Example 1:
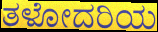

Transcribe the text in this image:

ತಳೋದರಿಯ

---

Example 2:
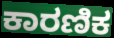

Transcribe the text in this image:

ಕಾರಣಿಕ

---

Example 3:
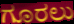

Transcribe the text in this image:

ಗೂರಲು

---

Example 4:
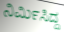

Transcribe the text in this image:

ನಿರ್ಮಿಸಿದ್ದ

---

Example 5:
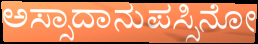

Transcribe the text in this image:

ಅಸ್ಸಾದಾನುಪಸ್ಸಿನೋ